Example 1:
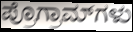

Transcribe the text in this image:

ಪ್ರೊಗ್ರಾಮ್‌ಗಳು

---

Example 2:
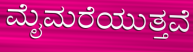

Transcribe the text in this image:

ಮೈಮರೆಯುತ್ತವೆ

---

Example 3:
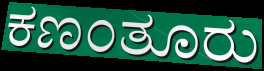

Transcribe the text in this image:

ಕಣಂತೂರು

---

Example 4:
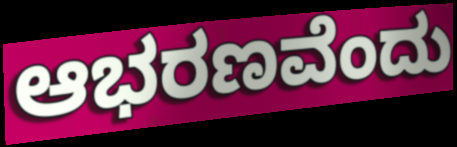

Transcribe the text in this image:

ಆಭರಣವೆಂದು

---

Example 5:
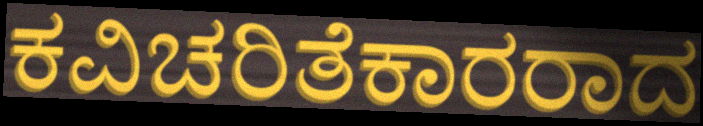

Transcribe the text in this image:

ಕವಿಚರಿತೆಕಾರರಾದ